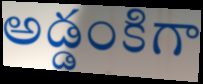
అడ్డంకిగా